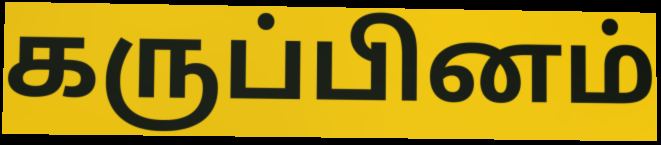
கருப்பினம்